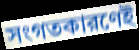
সংগতকারণেই